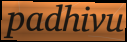
padhivu